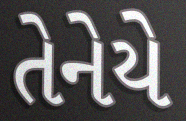
તેનેયે